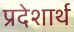
प्रदेशार्थ